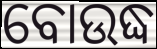
ବୋଉଦ୍ଧ